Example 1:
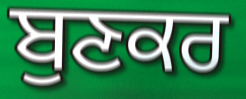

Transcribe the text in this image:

ਬੁਣਕਰ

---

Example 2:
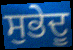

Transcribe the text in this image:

ਸੁਭੇਦੂ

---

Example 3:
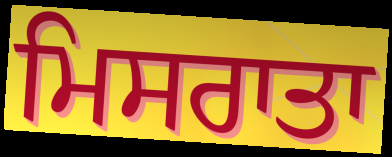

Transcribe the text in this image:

ਮਿਸਰਾਤਾ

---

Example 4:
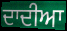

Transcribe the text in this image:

ਦਾਦੀਆ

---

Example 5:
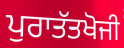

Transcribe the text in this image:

ਪੁਰਾਤੱਤਖੋਜੀ